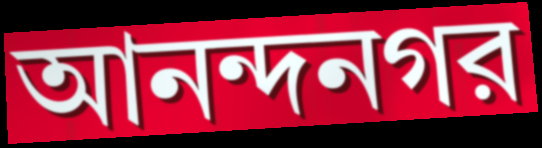
আনন্দনগর